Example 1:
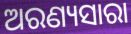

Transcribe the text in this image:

ଅରଣ୍ୟସାରା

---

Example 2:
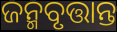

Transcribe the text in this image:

ଜନ୍ମବୃତ୍ତାନ୍ତ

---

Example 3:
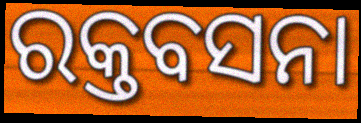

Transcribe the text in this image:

ରକ୍ତବସନା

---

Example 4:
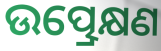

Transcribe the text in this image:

ଉତ୍ପ୍ରେକ୍ଷଣ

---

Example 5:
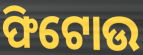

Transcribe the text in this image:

ଫିଟୋଉ